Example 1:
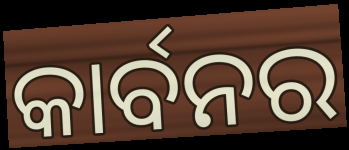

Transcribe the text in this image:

କାର୍ବନର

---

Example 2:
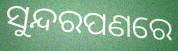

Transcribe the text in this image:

ସୁନ୍ଦରପଣରେ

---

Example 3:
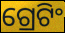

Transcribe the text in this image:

ଗ୍ରେଟିଂ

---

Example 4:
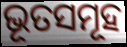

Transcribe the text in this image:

ଭୂତସମୂହ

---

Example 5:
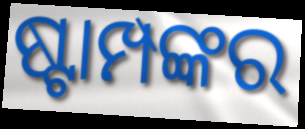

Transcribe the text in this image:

ଷ୍ଟାମ୍ପଙ୍କର